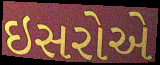
ઇસરોએ